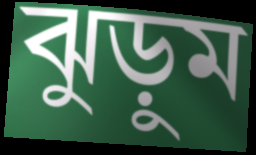
ঝুড়ুম